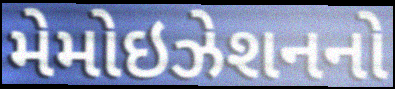
મેમોઇઝેશનનો